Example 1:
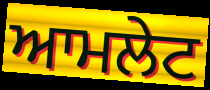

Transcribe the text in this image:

ਆਮਲੇਟ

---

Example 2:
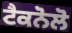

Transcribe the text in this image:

ਟੈਕਨੋਲੋ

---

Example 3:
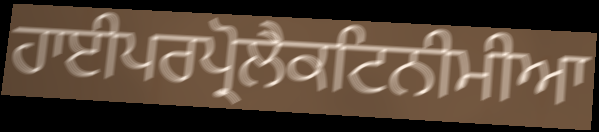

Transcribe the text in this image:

ਹਾਈਪਰਪ੍ਰੋਲੈਕਟਿਨੀਮੀਆ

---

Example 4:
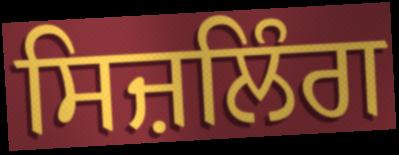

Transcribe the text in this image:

ਸਿਜ਼ਲਿੰਗ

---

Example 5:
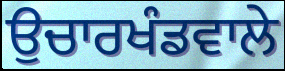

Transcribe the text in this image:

ਉਚਾਰਖੰਡਵਾਲੇ